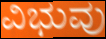
ವಿಭುವು